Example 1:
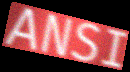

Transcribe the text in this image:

ANSI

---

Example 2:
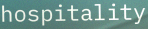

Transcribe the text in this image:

hospitality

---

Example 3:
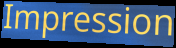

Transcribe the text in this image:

Impression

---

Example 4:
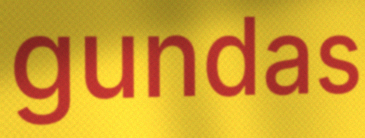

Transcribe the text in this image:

gundas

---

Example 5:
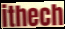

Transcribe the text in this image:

ithech